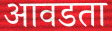
आवडता